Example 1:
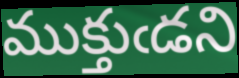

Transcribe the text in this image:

ముక్తుఁడని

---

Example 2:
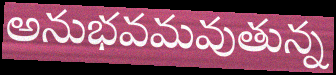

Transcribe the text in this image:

అనుభవమవుతున్న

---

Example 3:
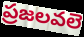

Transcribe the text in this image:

ప్రజలవలె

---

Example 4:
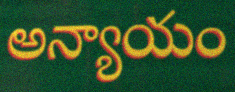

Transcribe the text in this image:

అన్యాయం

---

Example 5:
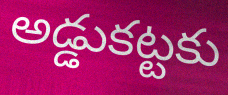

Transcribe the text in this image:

అడ్డుకట్టకు